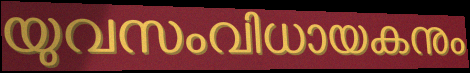
യുവസംവിധായകനും